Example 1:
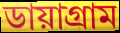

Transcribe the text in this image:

ডায়াগ্রাম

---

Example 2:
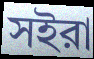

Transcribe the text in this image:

সইরা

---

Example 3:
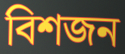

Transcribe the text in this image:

বিশজন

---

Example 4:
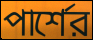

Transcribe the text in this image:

পার্শের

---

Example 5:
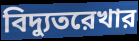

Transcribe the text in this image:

বিদ্যুতরেখার